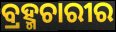
ବ୍ରହ୍ମଚାରୀର